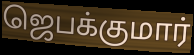
ஜெபக்குமார்